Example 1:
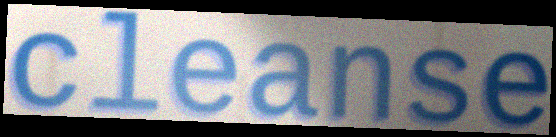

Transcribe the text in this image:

cleanse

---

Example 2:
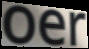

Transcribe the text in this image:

oer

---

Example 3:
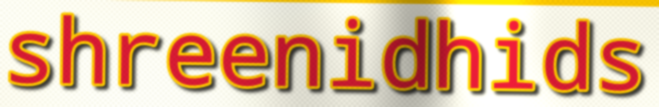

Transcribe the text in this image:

shreenidhids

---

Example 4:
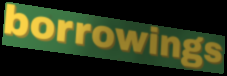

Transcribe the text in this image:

borrowings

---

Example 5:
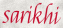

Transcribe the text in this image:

sarikhi